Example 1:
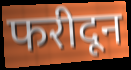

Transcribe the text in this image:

फरीदून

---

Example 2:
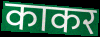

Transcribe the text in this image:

काकर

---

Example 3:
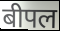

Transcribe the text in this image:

बीपल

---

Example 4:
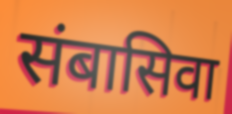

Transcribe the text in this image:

संबासिवा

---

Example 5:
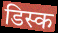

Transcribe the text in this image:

डिस्क